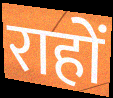
राहों